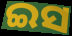
ଇସ